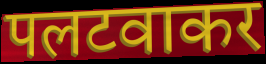
पलटवाकर